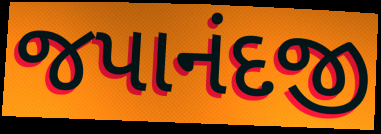
જપાનંદજી